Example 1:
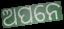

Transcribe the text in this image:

ଅପନେ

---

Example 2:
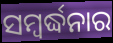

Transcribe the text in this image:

ସମ୍ବର୍ଦ୍ଧନାର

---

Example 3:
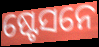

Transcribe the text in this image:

ଷ୍ଟେସନେ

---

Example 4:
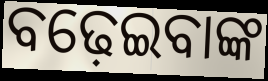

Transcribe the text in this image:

ବଢ଼େଇବାଙ୍କ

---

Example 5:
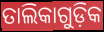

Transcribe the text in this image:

ତାଲିକାଗୁଡ଼ିକ